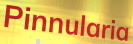
Pinnularia